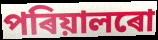
পৰিয়ালৰো